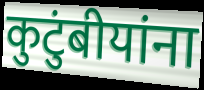
कुटुंबीयांना